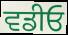
ਵਡੀਓ